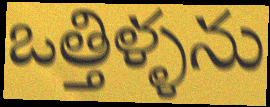
ఒత్తిళ్ళను